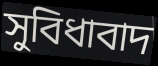
সুবিধাবাদ